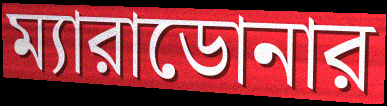
ম্যারাডোনার